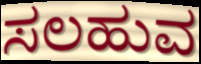
ಸಲಹುವ